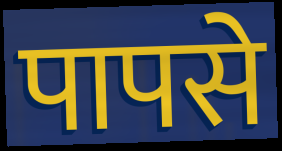
पापसे